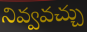
నివ్వవచ్చు